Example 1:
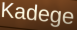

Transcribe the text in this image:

Kadege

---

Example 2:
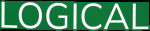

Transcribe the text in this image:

LOGICAL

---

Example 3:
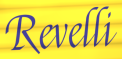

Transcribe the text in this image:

Revelli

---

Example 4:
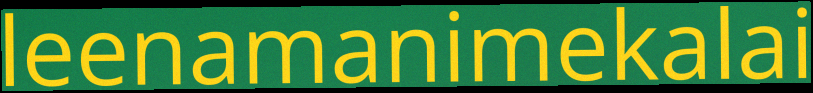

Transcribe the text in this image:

leenamanimekalai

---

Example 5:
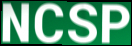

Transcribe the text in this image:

NCSP